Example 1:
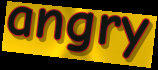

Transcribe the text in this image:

angry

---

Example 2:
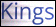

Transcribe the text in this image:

Kings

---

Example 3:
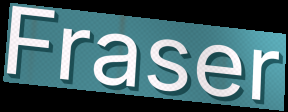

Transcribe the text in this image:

Fraser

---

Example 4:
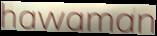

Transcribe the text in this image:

hawaman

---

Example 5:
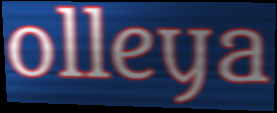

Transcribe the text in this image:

olleya